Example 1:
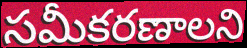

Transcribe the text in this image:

సమీకరణాలని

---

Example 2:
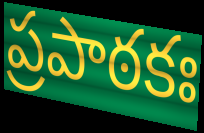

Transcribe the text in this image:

ప్రపాఠకః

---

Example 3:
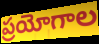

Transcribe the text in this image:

ప్రయోగాల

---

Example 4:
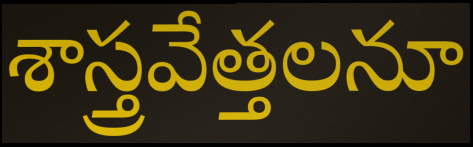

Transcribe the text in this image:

శాస్త్రవేత్తలనూ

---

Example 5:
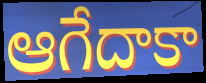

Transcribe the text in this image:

ఆగేదాకా